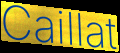
Caillat